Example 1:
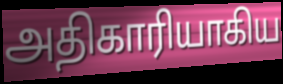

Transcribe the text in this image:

அதிகாரியாகிய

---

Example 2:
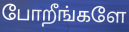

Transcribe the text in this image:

போறீங்களே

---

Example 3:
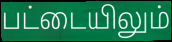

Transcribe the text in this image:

பட்டையிலும்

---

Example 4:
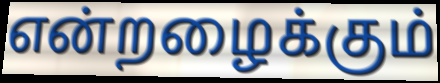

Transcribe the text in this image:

என்றழைக்கும்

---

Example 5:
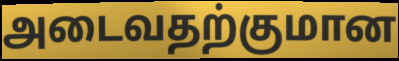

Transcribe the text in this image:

அடைவதற்குமான